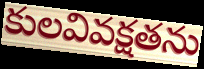
కులవివక్షతను